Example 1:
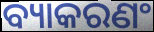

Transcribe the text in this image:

ବ୍ୟାକରଣଂ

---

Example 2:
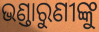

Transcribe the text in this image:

ଭଣ୍ଡାରୁଣୀଙ୍କୁ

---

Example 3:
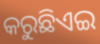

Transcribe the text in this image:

କରୁଛିଏଇ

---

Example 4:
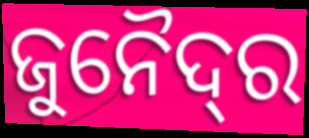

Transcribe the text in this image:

ଜୁନୈଦ୍‌ର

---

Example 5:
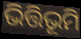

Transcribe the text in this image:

ଭିତ୍ତିଭୂମି